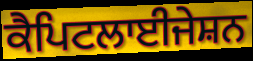
ਕੈਪਿਟਲਾਈਜੇਸ਼ਨ